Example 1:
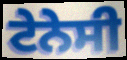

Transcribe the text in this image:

ਟੇਨੇਸੀ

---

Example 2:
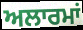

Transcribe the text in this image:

ਅਲਾਰਮਾਂ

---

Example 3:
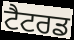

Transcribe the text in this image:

ਟੈਟਰਡ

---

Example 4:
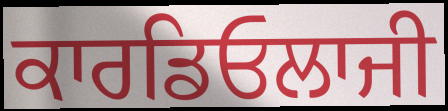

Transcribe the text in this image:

ਕਾਰਡਿਓਲਾਜੀ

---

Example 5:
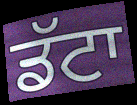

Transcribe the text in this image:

ਡੱਟਾ